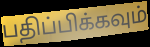
பதிப்பிக்கவும்